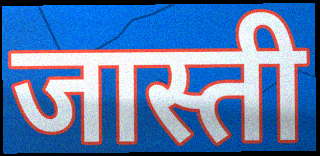
जास्ती